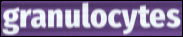
granulocytes